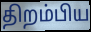
திறம்பிய